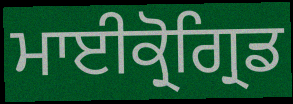
ਮਾਈਕ੍ਰੋਗ੍ਰਿਡ